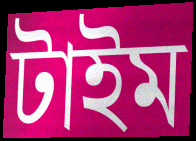
টাইম